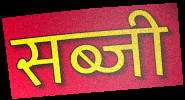
सब्जी